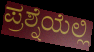
ಪ್ರಶ್ನೆಯೆಲ್ಲಿ